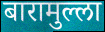
बारामुल्ला